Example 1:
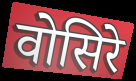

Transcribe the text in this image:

वोसिरे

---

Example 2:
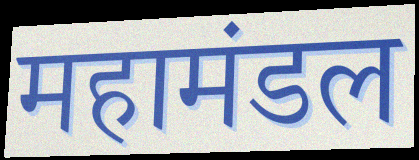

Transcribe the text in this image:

महामंडल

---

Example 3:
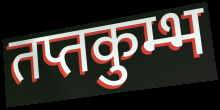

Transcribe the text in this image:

तप्तकुम्भ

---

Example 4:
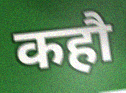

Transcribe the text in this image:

कहौ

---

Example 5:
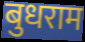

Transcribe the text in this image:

बुधराम